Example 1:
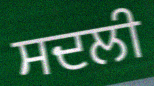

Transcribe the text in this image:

ਸਦਲੀ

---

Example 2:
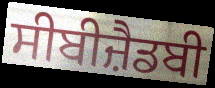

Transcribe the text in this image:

ਸੀਬੀਜ਼ੈਡਬੀ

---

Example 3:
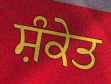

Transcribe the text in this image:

ਸ਼ੰਕੇਤ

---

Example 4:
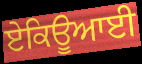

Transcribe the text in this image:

ਏਕਿਊਆਈ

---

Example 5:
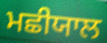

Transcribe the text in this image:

ਮਛੀਯਾਲ